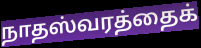
நாதஸ்வரத்தைக்